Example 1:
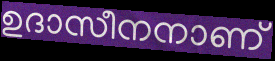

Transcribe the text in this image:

ഉദാസീനനാണ്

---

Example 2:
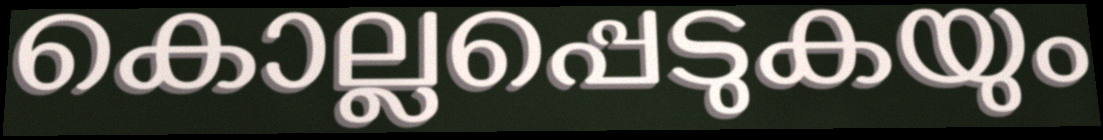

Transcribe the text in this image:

കൊല്ലപ്പെടുകയും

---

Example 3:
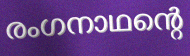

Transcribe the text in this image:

രംഗനാഥന്റെ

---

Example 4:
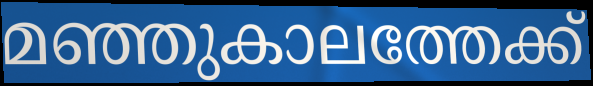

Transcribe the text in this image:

മഞ്ഞുകാലത്തേക്ക്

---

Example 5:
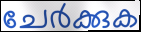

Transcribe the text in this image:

ചേർക്കുക